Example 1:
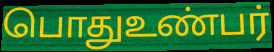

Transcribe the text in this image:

பொதுஉண்பர்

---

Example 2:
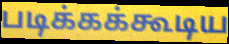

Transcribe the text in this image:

படிக்கக்கூடிய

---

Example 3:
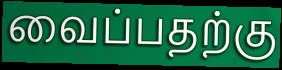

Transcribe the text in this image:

வைப்பதற்கு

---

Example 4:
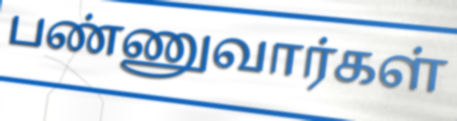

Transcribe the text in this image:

பண்ணுவார்கள்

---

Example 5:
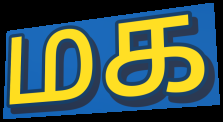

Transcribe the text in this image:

மக